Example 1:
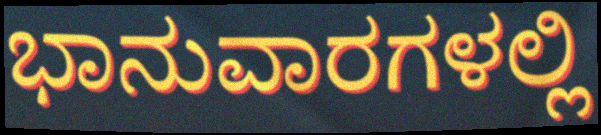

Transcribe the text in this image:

ಭಾನುವಾರಗಳಲ್ಲಿ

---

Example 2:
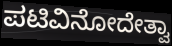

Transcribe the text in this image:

ಪಟಿವಿನೋದೇತ್ವಾ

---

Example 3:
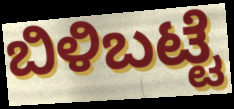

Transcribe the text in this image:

ಬಿಳಿಬಟ್ಟೆ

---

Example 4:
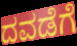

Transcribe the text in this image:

ದವಡೆಗೆ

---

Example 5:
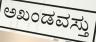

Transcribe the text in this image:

ಅಖಂಡವಸ್ತು